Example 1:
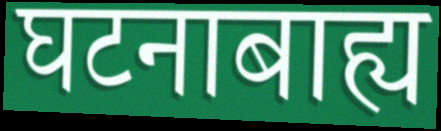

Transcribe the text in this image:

घटनाबाह्य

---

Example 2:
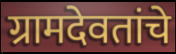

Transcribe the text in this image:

ग्रामदेवतांचे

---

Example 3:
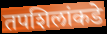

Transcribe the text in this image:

तपशिलांकडे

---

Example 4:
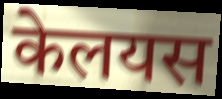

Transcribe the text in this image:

केलयस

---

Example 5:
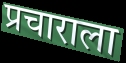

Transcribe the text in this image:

प्रचाराला